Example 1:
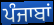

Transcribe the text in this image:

ਪੰਜਾਬਾਂ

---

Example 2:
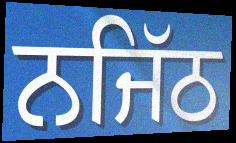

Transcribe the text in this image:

ਨਜਿੱਠ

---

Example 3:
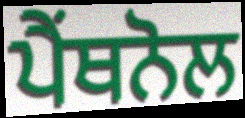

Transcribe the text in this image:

ਪੈਂਥਨੋਲ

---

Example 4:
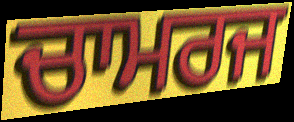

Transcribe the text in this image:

ਚਾਮਰਜ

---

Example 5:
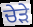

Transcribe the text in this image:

ਚੇੜੇ